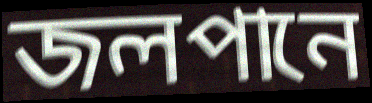
জলপানে